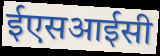
ईएसआईसी